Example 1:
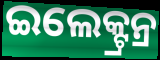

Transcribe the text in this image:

ଇଲେକ୍ଟ୍ରନ୍ର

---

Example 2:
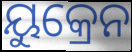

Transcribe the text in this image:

ୟୁକ୍ରେନ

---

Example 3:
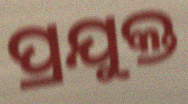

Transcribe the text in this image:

ପ୍ରଯୁକ୍ତ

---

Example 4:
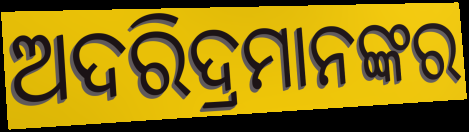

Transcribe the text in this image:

ଅଦରିଦ୍ରମାନଙ୍କର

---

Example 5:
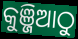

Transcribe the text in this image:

କୁଞ୍ଜିଆଠୁ